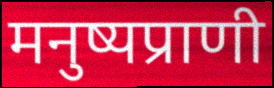
मनुष्यप्राणी